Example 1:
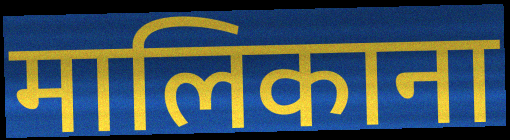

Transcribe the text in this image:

मालिकाना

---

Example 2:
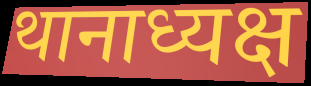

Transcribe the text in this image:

थानाध्यक्ष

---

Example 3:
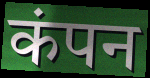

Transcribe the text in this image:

कंपन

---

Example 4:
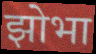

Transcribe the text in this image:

झोभा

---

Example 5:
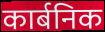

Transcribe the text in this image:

कार्बनिक